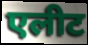
एलीट